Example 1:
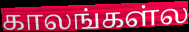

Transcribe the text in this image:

காலங்கள்ல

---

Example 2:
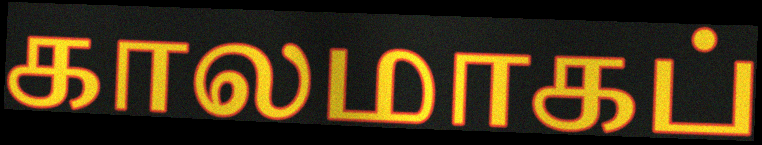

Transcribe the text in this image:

காலமாகப்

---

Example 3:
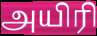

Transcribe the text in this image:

அயிரி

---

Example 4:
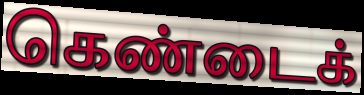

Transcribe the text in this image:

கெண்டைக்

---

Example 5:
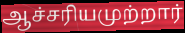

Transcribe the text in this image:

ஆச்சரியமுற்றார்